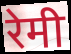
रेमी